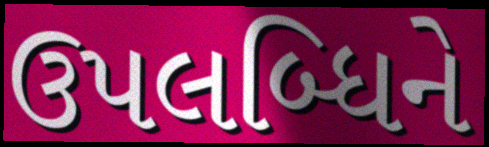
ઉપલબ્ધિને